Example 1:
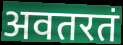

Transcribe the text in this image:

अवतरतं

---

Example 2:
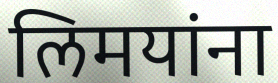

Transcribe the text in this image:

लिमयांना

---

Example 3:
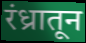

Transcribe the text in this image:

रंध्रातून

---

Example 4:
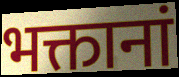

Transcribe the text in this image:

भक्तानां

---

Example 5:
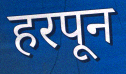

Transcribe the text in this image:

हरपून